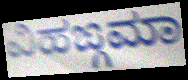
ವಿಹಙ್ಗಮಾ